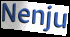
Nenju